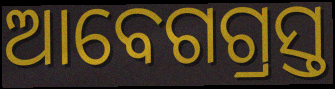
ଆବେଗଗ୍ରସ୍ତ